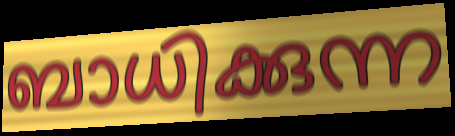
ബാധിക്കുന്ന